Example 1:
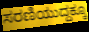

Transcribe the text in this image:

ಸರಣಿಯುದ್ದಕ್ಕೂ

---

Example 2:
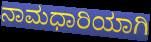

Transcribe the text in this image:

ನಾಮಧಾರಿಯಾಗಿ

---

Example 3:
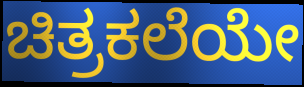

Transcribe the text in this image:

ಚಿತ್ರಕಲೆಯೇ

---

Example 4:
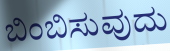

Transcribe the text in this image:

ಬಿಂಬಿಸುವುದು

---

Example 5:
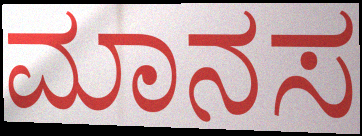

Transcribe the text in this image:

ಮಾನಸ